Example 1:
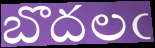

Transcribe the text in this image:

బొదలఁ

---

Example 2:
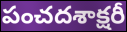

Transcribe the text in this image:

పంచదశాక్షరీ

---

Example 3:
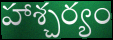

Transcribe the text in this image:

హాశ్చర్యం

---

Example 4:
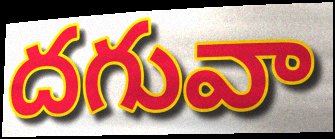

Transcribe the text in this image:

దగువా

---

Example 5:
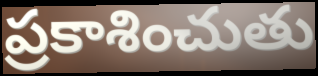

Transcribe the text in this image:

ప్రకాశించుతు